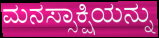
ಮನಸ್ಸಾಕ್ಷಿಯನ್ನು